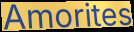
Amorites